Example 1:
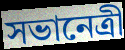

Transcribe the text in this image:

সভানেত্রী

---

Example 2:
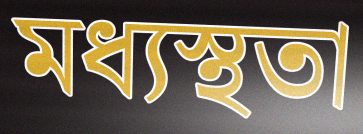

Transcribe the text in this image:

মধ্যস্থতা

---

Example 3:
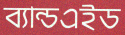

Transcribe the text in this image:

ব্যান্ডএইড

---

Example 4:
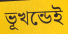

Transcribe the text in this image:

ভূখন্ডেই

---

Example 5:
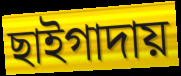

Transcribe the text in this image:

ছাইগাদায়